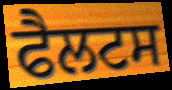
ਫੈਲਟਸ